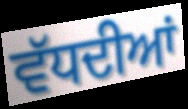
ਵੱਧਦੀਆਂ